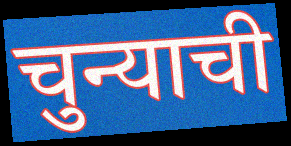
चुन्याची